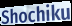
Shochiku